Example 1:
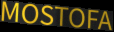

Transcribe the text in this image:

MOSTOFA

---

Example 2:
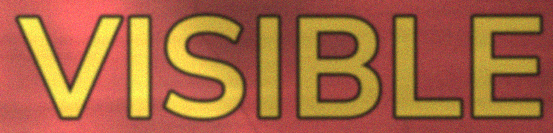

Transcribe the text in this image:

VISIBLE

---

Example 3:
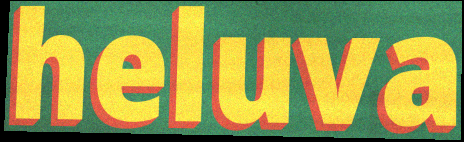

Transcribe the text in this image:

heluva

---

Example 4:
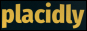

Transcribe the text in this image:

placidly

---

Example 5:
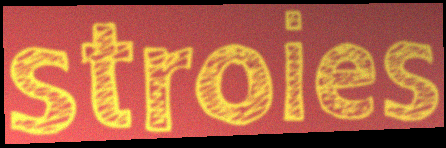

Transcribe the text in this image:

stroies